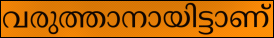
വരുത്താനായിട്ടാണ്